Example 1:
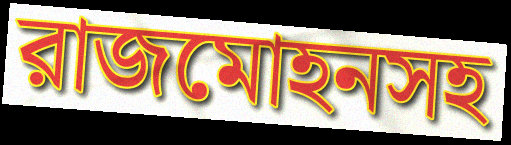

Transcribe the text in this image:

রাজমোহনসহ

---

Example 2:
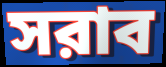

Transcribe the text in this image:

সরাব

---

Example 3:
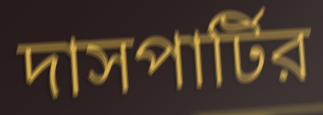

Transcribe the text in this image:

দাসপার্টির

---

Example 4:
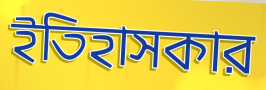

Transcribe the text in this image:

ইতিহাসকার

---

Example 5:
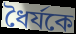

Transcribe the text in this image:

ধৈর্যকে